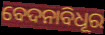
ବେଦନାବିଧୂର